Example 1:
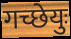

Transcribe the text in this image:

गच्छेयुः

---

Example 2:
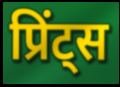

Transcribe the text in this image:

प्रिंट्स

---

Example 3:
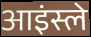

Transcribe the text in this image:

आइंस्ले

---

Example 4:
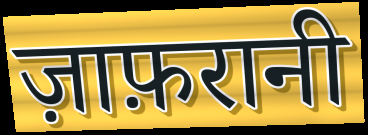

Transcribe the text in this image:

ज़ाफ़रानी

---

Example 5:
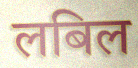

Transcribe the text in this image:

लबिल